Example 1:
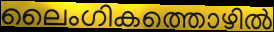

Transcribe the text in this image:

ലൈംഗികത്തൊഴിൽ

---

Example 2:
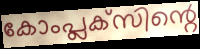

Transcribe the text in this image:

കോംപ്ലക്‌സിന്റെ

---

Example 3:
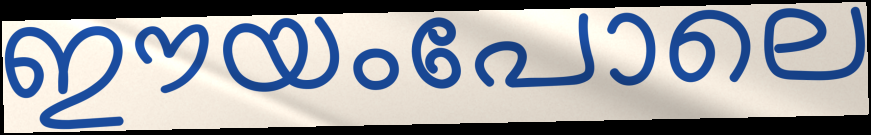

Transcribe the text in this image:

ഈയംപോലെ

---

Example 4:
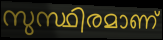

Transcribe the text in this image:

സുസ്ഥിരമാണ്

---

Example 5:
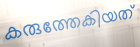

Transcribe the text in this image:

കരുത്തേകിയത്